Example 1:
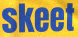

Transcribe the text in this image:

skeet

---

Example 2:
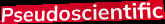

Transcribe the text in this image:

Pseudoscientific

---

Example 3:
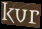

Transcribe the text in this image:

kur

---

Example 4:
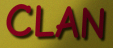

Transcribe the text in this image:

CLAN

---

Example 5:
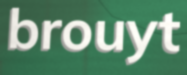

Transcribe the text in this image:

brouyt